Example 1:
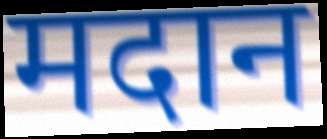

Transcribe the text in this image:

मदान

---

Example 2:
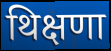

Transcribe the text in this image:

थिक्षणा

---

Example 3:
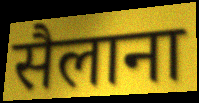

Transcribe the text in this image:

सैलाना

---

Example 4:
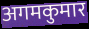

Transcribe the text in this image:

अगमकुमार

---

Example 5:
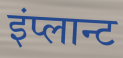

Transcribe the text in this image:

इंप्लान्ट